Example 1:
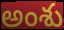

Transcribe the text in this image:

అంశు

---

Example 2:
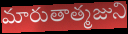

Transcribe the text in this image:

మారుతాత్మజుని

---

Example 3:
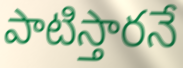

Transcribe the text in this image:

పాటిస్తారనే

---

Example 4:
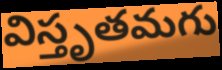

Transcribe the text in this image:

విస్తృతమగు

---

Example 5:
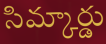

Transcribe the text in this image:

సిమ్కార్డు